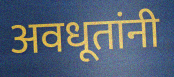
अवधूतांनी